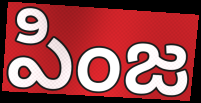
పింజ